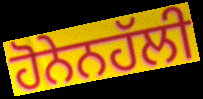
ਹੋਨੇਨਹੱਲੀ